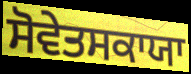
ਸੋਵੇਤਸਕਾਯਾ